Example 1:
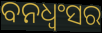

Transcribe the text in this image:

ବନଧ୍ଵଂସର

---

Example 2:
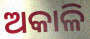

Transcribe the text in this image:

ଅକାଳି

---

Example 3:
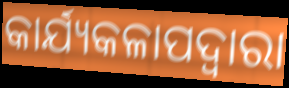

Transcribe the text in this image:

କାର୍ଯ୍ୟକଳାପଦ୍ବାରା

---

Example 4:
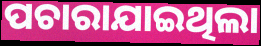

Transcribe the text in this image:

ପଚାରାଯାଇଥିଲା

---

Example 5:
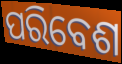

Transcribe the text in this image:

ପରିବେଶ